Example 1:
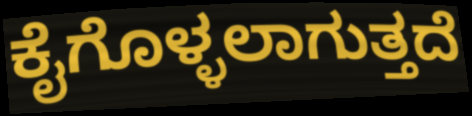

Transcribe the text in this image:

ಕೈಗೊಳ್ಳಲಾಗುತ್ತದೆ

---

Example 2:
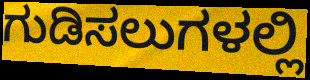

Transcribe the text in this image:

ಗುಡಿಸಲುಗಳಲ್ಲಿ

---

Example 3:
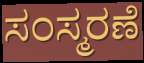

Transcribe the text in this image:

ಸಂಸ್ಮರಣೆ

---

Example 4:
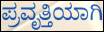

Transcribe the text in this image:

ಪ್ರವೃತ್ತಿಯಾಗಿ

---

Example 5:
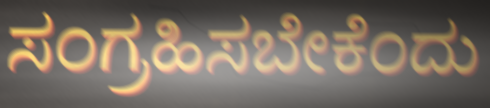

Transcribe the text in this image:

ಸಂಗ್ರಹಿಸಬೇಕೆಂದು